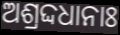
ଅଶ୍ରଦ୍ଦଧାନାଃ